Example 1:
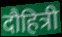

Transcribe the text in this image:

दौहित्री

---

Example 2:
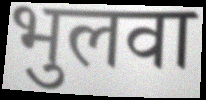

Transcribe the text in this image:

भुलवा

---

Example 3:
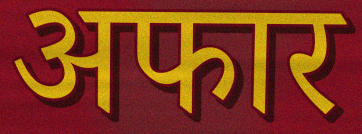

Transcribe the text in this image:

अफार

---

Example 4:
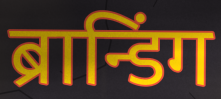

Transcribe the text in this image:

ब्रान्डिंग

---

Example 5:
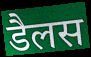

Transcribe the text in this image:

डैलस